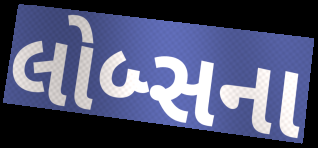
લોબ્સના